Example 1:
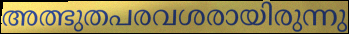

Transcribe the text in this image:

അത്ഭുതപരവശരായിരുന്നു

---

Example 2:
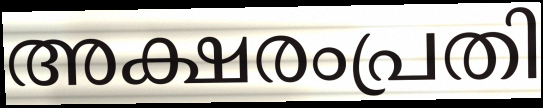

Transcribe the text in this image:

അക്ഷരംപ്രതി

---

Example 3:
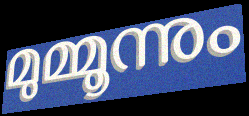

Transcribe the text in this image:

മുമ്മൂന്നും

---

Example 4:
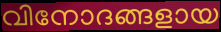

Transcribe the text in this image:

വിനോദങ്ങളായ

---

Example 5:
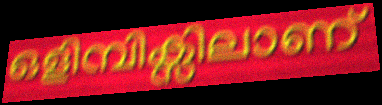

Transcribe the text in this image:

ഒളിമ്പിക്സിലാണ്